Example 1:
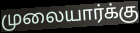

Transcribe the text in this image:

முலையார்க்கு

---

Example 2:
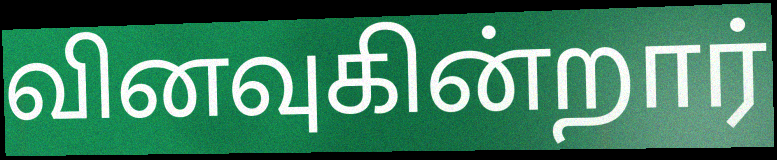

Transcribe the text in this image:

வினவுகின்றார்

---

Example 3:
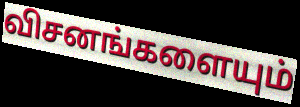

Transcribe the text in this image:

விசனங்களையும்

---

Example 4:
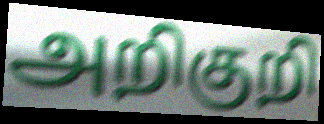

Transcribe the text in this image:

அறிகுறி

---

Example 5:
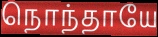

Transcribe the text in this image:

நொந்தாயே